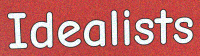
Idealists